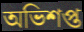
অভিশপ্ত